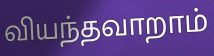
வியந்தவாறாம்